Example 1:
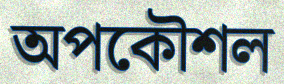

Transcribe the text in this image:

অপকৌশল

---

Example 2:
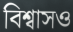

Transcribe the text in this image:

বিশ্বাসও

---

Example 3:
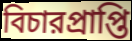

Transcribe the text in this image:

বিচারপ্রাপ্তি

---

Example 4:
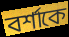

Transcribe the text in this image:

বর্শাকে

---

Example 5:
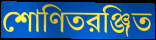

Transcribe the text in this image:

শোণিতরঞ্জিত